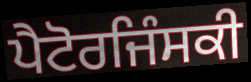
ਪੈਟੋਰਜਿੰਸਕੀ